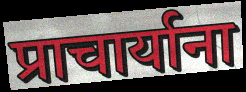
प्राचार्याना